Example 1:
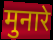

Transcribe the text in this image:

मुनारे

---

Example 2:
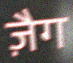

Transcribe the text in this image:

ज़ैग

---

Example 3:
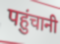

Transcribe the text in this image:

पहुंचानी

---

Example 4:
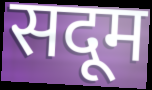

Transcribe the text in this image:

सदूम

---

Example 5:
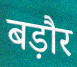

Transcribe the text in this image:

बड़ौर